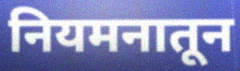
नियमनातून